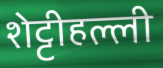
शेट्टीहल्ली